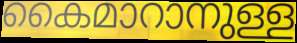
കൈമാറാനുള്ള